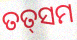
ତତ୍‌ସମ